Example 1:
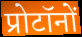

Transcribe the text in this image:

प्रोटॉनों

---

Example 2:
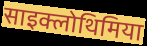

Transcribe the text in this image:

साइक्लोथिमिया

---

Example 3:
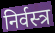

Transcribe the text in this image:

निर्वस्त्र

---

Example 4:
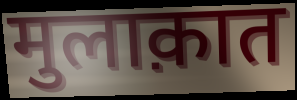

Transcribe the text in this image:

मुलाक़ात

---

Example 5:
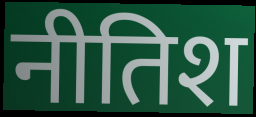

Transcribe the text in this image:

नीतिश